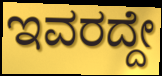
ಇವರದ್ದೇ